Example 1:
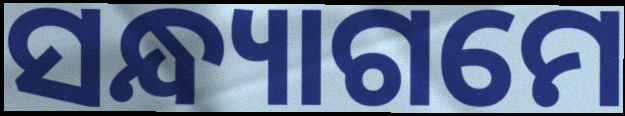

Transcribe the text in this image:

ସନ୍ଧ୍ୟାଗମେ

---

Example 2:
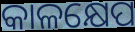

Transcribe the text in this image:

କାଳକ୍ଷେପ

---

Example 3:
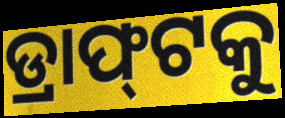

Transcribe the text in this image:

ଡ୍ରାଫ୍‌ଟକୁ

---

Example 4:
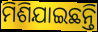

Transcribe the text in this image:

ମିଶିଯାଇଛନ୍ତି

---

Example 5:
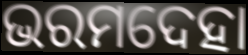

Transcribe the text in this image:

ଭରମଦେହା